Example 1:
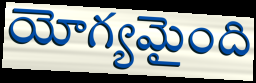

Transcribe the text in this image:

యోగ్యమైంది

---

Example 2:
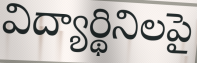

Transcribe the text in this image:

విద్యార్థినిలపై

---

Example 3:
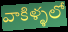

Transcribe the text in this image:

వాకిళ్ళలో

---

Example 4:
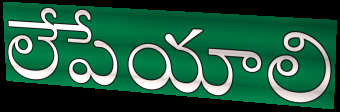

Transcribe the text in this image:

లేపేయాలి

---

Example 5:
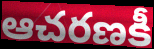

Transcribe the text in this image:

ఆచరణకీ